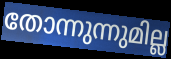
തോന്നുന്നുമില്ല